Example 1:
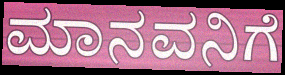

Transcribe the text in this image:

ಮಾನವನಿಗೆ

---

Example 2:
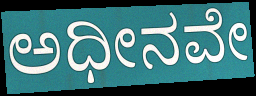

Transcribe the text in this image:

ಅಧೀನವೇ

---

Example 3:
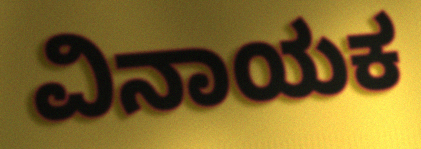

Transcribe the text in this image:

ವಿನಾಯಕ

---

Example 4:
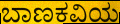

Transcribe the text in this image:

ಬಾಣಕವಿಯ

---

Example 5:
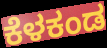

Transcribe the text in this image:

ಕೆಳಕಂಡ